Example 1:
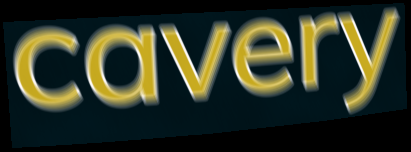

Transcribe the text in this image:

cavery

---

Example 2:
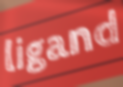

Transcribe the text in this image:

ligand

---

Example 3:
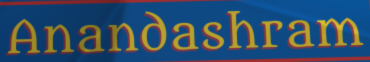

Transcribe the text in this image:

Anandashram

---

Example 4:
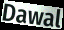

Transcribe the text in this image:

Dawal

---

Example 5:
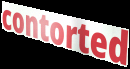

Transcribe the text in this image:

contorted